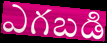
ఎగబడి